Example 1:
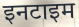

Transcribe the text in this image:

इनटाइम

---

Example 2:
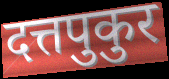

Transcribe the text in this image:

दत्तपुकुर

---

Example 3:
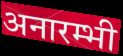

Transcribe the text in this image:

अनारम्भी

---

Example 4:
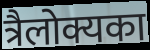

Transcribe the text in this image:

त्रैलोक्यका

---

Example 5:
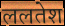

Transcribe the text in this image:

ललतेश